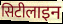
सिटीलाइन